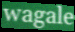
wagale